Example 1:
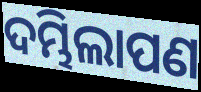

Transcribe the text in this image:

ଦମ୍ଭିଲାପଣ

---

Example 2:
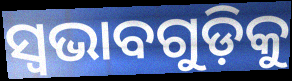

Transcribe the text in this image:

ସ୍ୱଭାବଗୁଡ଼ିକୁ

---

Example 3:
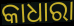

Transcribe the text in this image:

କାଧାରା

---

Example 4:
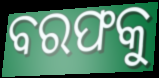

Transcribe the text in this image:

ବରଫକୁ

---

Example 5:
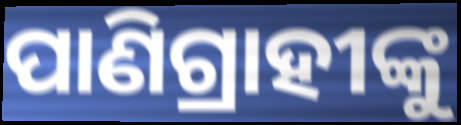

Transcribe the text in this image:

ପାଣିଗ୍ରାହୀଙ୍କୁ